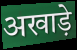
अखाड़े